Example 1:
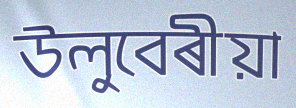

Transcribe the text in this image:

উলুবেৰীয়া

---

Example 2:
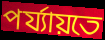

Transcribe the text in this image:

পৰ্য্যায়তে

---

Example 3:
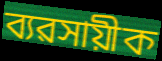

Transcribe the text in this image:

ব্যৱসায়ীক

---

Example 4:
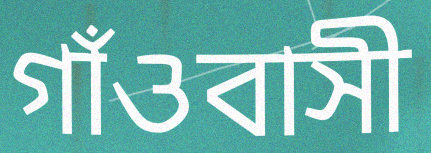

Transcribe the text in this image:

গাঁওবাসী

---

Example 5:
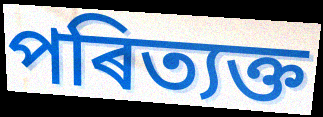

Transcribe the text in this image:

পৰিত্যক্ত